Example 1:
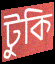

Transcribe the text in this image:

টুকি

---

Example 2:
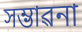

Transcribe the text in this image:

সম্ভাৱনা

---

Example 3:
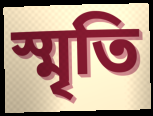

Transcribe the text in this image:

স্মৃতি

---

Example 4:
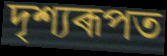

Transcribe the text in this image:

দৃশ্যৰূপত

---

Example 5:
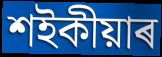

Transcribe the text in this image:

শইকীয়াৰ